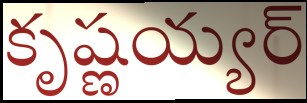
కృష్ణయ్యర్